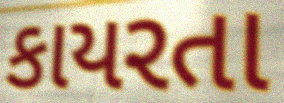
કાયરતા